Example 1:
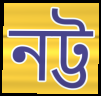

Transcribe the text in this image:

নট্ট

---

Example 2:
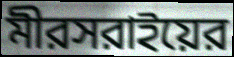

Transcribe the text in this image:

মীরসরাইয়ের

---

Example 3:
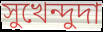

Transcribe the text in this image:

সুখেন্দুদা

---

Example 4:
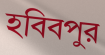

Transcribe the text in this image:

হবিবপুর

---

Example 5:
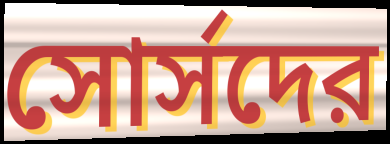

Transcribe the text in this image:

সোর্সদের